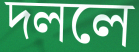
দললে